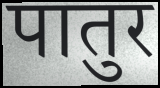
पातुर